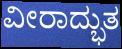
ವೀರಾದ್ಭುತ